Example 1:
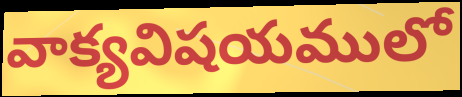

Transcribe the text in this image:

వాక్యవిషయములో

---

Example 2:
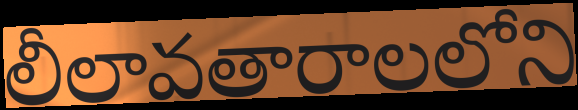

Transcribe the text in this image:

లీలావతారాలలోని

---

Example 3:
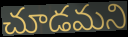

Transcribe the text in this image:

చూడమని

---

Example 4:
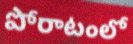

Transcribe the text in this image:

పోరాటంలో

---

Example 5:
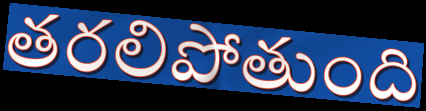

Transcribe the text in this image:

తరలిపోతుంది